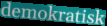
demokratisk